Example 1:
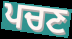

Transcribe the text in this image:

ਪਚਣ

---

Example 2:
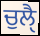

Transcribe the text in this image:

ਚੁਲੈੑ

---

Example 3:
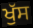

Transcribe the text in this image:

ਖੁੱਸ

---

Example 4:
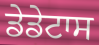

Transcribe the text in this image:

ਡੇਡੇਟਾਸ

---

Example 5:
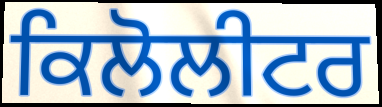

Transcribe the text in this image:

ਕਿਲੋਲੀਟਰ